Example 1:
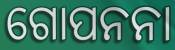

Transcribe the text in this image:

ଗୋପନନା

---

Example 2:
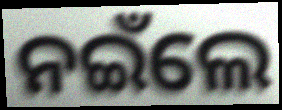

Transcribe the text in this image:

ନଇଁଲେ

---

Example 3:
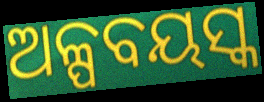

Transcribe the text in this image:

ଅଳ୍ପବୟସ୍କ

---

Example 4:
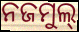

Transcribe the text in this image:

ନଜମୁଲ୍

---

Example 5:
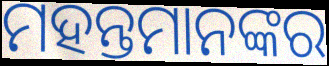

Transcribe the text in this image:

ମହନ୍ତମାନଙ୍କର